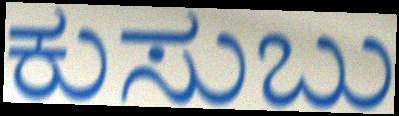
ಕುಸುಬು